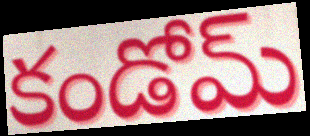
కండోమ్